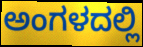
ಅಂಗಳದಲ್ಲಿ